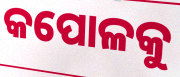
କପୋଳକୁ